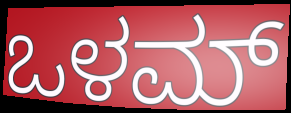
ಒಳಮ್